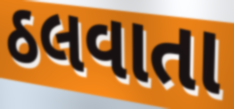
ઠલવાતા